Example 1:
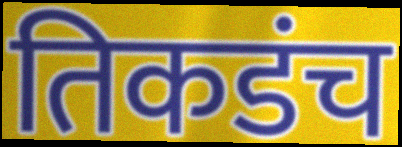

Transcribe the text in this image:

तिकडंच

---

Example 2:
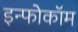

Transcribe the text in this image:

इन्फोकॉम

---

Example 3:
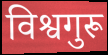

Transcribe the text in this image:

विश्वगुरू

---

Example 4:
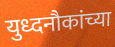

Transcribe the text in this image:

युध्दनौकांच्या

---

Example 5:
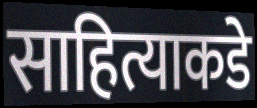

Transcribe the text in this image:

साहित्याकडे